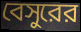
বেসুরের